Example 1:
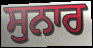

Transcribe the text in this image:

ਸੁਨਾਰ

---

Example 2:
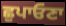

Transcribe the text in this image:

ਛੁਪਾਓਣਾ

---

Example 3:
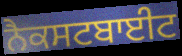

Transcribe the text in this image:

ਨੈਕਸਟਬਾਈਟ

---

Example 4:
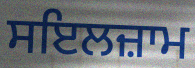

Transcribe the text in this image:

ਸਇਲਜ਼ਾਮ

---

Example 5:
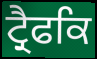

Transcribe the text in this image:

ਟ੍ਰੈਫਕਿ